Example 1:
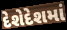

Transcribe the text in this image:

દેશેદેશમાં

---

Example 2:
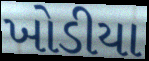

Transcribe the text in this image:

ખોડીયા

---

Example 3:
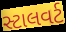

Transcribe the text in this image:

સ્ટાલવર્ટ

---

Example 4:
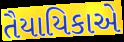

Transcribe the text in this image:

તૈયાયિકાએ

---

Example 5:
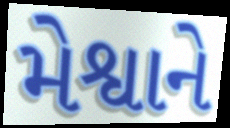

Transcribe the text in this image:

મેશ્વાને